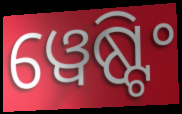
ୱେଷ୍ଟିଂ